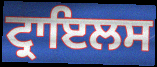
ਟ੍ਰਾਇਲਸ